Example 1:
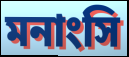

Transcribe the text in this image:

মনাংসি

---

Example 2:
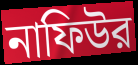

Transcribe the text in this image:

নাফিউর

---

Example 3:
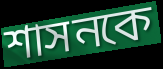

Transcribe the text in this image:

শাসনকে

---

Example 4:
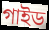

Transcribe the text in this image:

গাইড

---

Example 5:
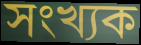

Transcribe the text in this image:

সংখ্যক